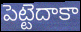
పెట్టెదాకా